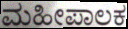
ಮಹೀಪಾಲಕ